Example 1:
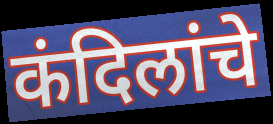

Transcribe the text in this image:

कंदिलांचे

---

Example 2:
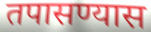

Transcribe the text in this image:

तपासण्यास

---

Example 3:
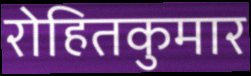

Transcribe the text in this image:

रोहितकुमार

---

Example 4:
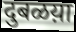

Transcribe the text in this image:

दुबळय़ा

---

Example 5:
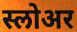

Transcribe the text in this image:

स्लोअर